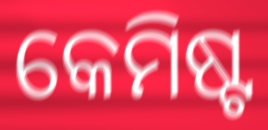
କେମିଷ୍ଟ